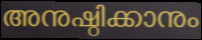
അനുഷ്ഠിക്കാനും